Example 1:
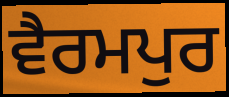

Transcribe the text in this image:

ਵੈਰਮਪੁਰ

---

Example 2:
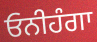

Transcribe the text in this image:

ਓਨੀਹੰਗਾ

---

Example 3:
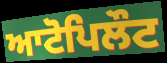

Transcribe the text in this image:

ਆਟੋਪਿਲੌਟ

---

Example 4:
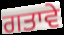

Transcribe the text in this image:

ਗਤਾਵੇ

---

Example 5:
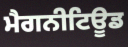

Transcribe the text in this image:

ਮੈਗਨੀਟਿਊਡ